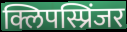
क्लिपस्प्रिंजर